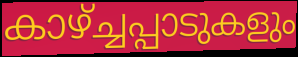
കാഴ്ച്ചപ്പാടുകളും